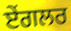
ਏਂਗਲਰ